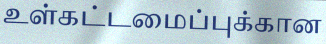
உள்கட்டமைப்புக்கான